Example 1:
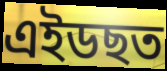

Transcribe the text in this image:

এইডছত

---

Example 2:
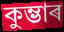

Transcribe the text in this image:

কুম্ভাৰ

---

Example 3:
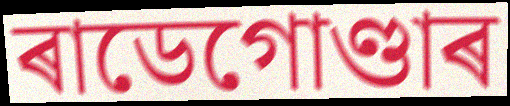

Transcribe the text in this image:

ৰাডেগোণ্ডাৰ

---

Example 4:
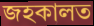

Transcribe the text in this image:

জহকালত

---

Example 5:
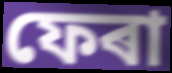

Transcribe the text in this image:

ফেৰা